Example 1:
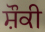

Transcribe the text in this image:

ਸ਼ੌਕੀ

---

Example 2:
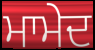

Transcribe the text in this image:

ਮਾਮੇਦ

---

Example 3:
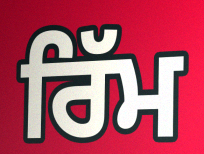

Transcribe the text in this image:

ਰਿੱਮ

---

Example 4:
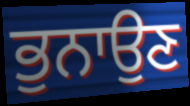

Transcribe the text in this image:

ਭੁਨਾਉਣ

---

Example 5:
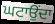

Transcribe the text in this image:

ਘਟਾਉਂਦਾ